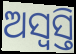
ଅସ୍ୱସ୍ତି